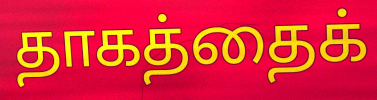
தாகத்தைக்